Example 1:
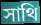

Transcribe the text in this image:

সাথি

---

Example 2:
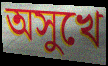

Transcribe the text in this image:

অসুখে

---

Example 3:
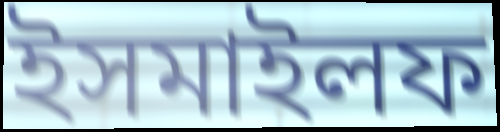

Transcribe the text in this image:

ইসমাইলফ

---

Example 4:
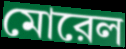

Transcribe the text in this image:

মোরেল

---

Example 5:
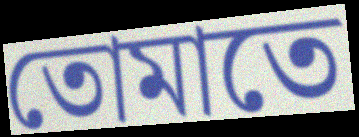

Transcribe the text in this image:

তোমাতে